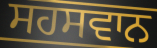
ਸਹਸਵਾਨ